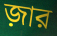
জ়ার